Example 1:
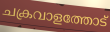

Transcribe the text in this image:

ചക്രവാളത്തോട്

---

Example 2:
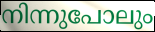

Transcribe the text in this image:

നിന്നുപോലും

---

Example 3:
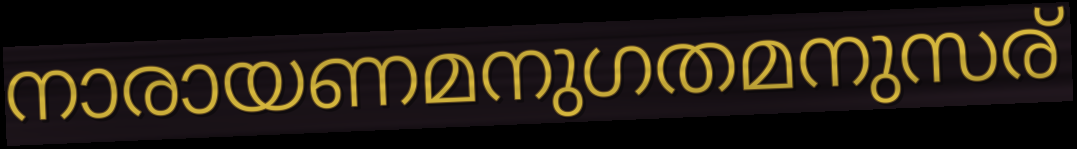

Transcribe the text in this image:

നാരായണമനുഗതമനുസര്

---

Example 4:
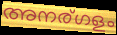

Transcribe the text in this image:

അനര്ഗളം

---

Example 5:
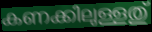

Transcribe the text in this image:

കണക്കിലുള്ളതു്